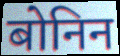
बोनिन